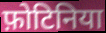
फ़ोटिनिया